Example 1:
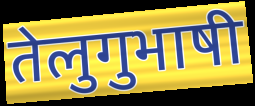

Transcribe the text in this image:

तेलुगुभाषी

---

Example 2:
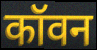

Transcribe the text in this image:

कॉवन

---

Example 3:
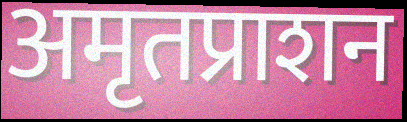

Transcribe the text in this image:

अमृतप्राशन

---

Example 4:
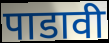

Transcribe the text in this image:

पाडावी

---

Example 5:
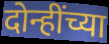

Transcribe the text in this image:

दोन्हींच्या